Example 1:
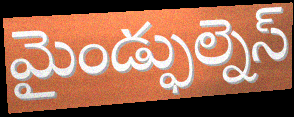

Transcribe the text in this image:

మైండ్ఫుల్నెస్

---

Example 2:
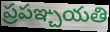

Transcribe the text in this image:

ప్రపఞ్చయతి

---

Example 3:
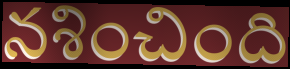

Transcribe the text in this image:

నశించింది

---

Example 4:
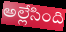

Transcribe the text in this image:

అల్లేసింది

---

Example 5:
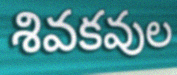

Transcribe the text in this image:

శివకవుల